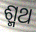
ଶ୍ମଥ